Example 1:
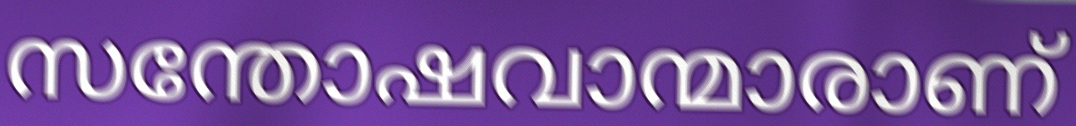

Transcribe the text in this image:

സന്തോഷവാന്മാരാണ്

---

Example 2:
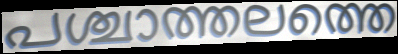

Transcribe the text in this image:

പശ്ചാത്തലത്തെ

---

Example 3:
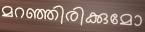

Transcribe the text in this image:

മറഞ്ഞിരിക്കുമോ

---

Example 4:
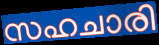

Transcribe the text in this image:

സഹചാരി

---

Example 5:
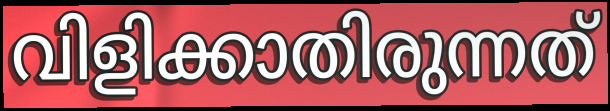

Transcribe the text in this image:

വിളിക്കാതിരുന്നത്